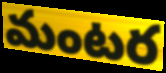
మంటర